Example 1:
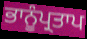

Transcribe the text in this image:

ਭਾਨੂੰਪ੍ਰਤਾਪ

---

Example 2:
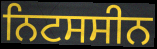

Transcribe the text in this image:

ਨਿਟਸਸੀਨ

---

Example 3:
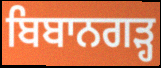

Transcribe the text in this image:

ਬਿਬਾਨਗੜ੍ਹ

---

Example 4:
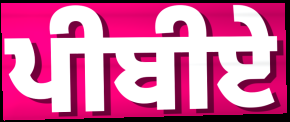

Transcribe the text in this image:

ਪੀਬੀਏ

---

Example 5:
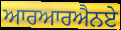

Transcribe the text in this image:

ਆਰਆਰਐਨਏ